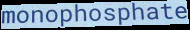
monophosphate